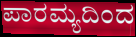
ಪಾರಮ್ಯದಿಂದ